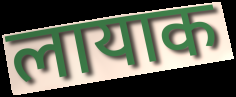
लायाक